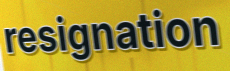
resignation